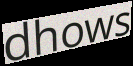
dhows